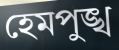
হেমপুঙ্খ